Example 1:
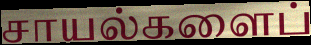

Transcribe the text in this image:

சாயல்களைப்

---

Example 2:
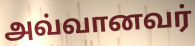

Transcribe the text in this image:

அவ்வானவர்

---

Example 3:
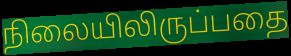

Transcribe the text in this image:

நிலையிலிருப்பதை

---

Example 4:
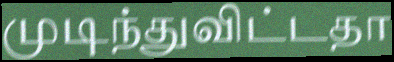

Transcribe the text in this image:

முடிந்துவிட்டதா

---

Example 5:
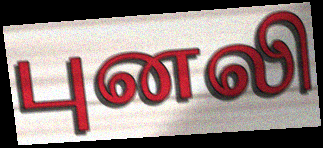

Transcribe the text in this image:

புனலி